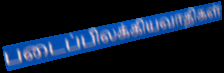
படைப்பிலக்கியவாதிகள்